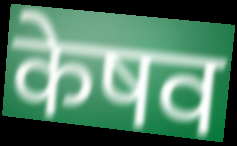
केषव